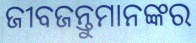
ଜୀବଜନ୍ତୁମାନଙ୍କର